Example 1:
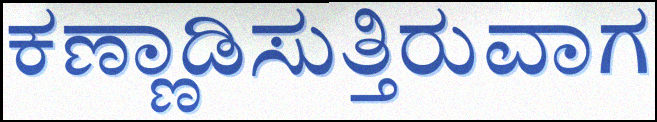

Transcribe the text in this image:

ಕಣ್ಣಾಡಿಸುತ್ತಿರುವಾಗ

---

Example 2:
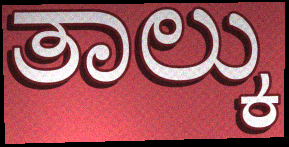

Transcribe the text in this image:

ತಾಲ್ಕು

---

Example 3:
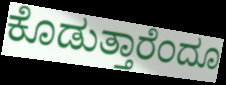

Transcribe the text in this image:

ಕೊಡುತ್ತಾರೆಂದೂ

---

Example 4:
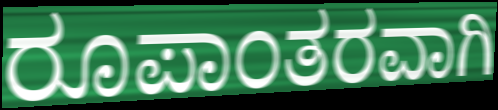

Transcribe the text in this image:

ರೂಪಾಂತರವಾಗಿ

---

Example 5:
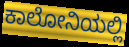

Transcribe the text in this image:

ಕಾಲೋನಿಯಲ್ಲಿ